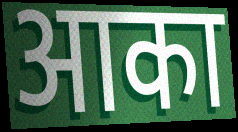
आका